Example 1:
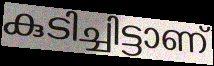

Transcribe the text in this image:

കുടിച്ചിട്ടാണ്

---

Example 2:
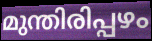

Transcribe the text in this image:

മുന്തിരിപ്പഴം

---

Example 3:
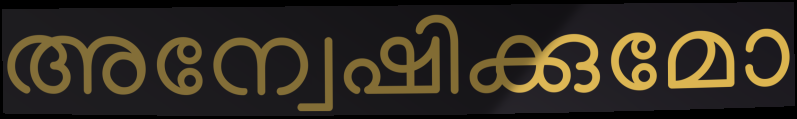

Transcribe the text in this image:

അന്വേഷിക്കുമോ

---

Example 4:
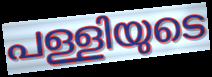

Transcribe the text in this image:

പള്ളിയുടെ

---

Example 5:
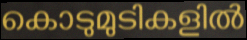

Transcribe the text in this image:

കൊടുമുടികളിൽ